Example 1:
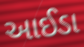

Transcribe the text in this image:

આઈડા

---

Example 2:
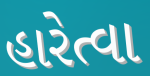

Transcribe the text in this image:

હારેત્વા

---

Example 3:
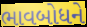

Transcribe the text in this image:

ભાવબોધને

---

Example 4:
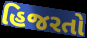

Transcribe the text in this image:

હિજરતો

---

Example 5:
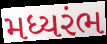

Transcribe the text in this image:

મધ્યરંભ